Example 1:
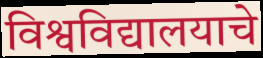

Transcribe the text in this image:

विश्वविद्यालयाचे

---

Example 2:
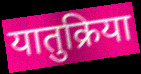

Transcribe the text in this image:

यातुक्रिया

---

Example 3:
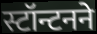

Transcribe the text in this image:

स्टॉन्टनने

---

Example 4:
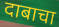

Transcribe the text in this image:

दाबाचा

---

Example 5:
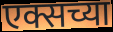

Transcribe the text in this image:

एक्सच्या